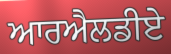
ਆਰਐਲਡੀਏ